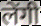
लेंगी